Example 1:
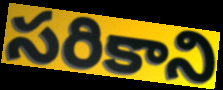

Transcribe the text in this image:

సరికాని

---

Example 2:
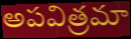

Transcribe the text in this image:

అపవిత్రమా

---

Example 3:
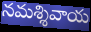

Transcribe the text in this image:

నమశ్శివాయ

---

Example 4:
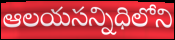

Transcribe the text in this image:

ఆలయసన్నిధిలోని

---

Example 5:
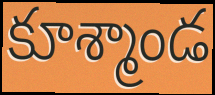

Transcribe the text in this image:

కూశ్మాండ